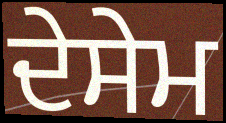
ਦੇਸੇਮ